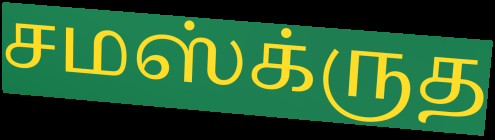
சமஸ்க்ருத